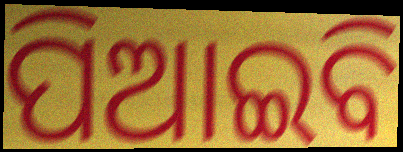
ପିଆଇବି